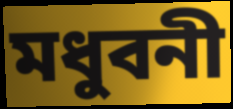
মধুবনী